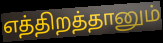
எத்திறத்தானும்